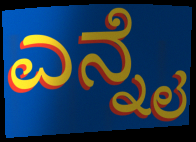
ಎನ್ನೈ